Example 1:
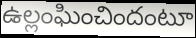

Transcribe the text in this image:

ఉల్లంఘించిందంటూ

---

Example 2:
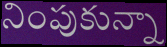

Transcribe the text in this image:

నింపుకున్నా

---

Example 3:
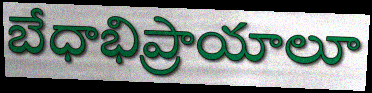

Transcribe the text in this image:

బేధాభిప్రాయాలూ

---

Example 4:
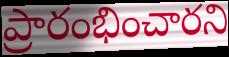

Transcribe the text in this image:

ప్రారంభించారని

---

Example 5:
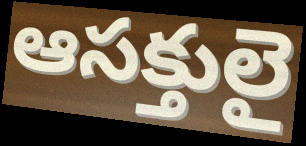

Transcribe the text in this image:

ఆసక్తులై